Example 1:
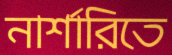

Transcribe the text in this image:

নার্শারিতে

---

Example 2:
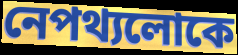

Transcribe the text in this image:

নেপথ্যলোকে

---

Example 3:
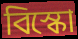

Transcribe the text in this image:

বিস্কো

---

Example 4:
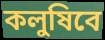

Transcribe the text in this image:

কলুষিবে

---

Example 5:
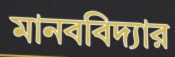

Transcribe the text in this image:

মানববিদ্যার